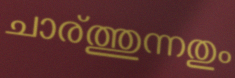
ചാര്ത്തുന്നതും